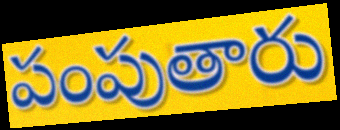
పంపుతారు